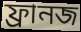
ফ্রানজ